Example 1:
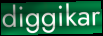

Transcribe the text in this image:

diggikar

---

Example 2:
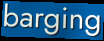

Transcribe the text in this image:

barging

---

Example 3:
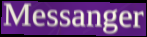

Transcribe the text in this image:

Messanger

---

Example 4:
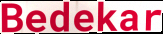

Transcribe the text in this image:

Bedekar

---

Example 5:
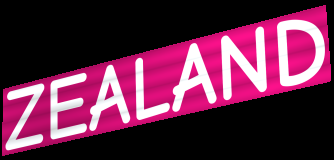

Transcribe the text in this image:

ZEALAND